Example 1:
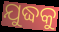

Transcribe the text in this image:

ଯୁଦ୍ଧକୁ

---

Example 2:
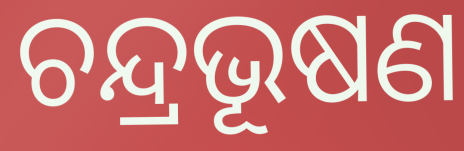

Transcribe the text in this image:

ଚନ୍ଦ୍ରଭୂଷଣ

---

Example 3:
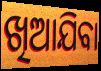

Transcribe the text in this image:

ଖିଆଯିବା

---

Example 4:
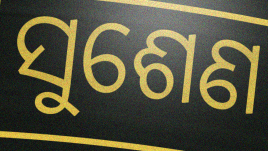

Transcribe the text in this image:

ସୁଶେଣ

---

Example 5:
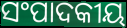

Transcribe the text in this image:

ସଂପାଦକୀୟ